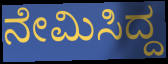
ನೇಮಿಸಿದ್ದ